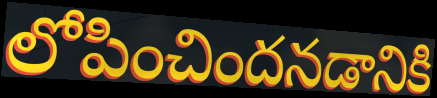
లోపించిందనడానికి